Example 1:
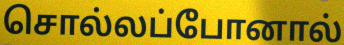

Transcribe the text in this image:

சொல்லப்போனால்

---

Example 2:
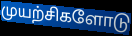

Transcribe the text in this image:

முயற்சிகளோடு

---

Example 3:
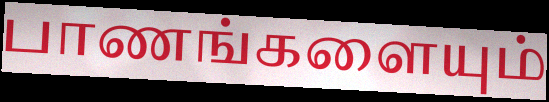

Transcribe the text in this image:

பாணங்களையும்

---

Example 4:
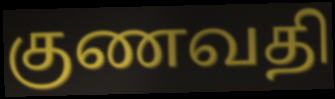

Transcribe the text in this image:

குணவதி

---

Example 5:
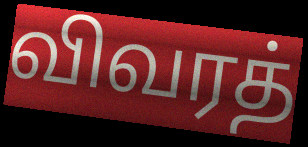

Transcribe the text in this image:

விவரத்